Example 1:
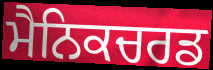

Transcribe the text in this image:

ਮੈਨਿਕਚਰਡ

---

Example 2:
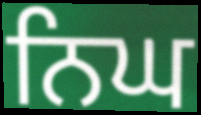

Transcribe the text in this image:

ਨਿਘ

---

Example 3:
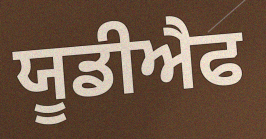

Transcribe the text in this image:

ਯੂਡੀਐਫ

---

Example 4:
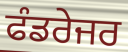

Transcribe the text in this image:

ਫੰਡਰੇਜਰ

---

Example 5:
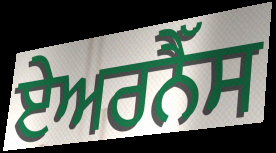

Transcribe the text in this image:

ਏਅਰਨੈੱਸ